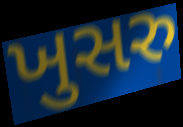
ખુસરુ